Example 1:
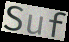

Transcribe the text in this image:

Suf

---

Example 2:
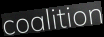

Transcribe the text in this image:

coalition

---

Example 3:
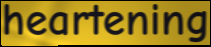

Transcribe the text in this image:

heartening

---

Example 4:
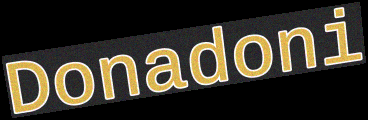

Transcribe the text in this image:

Donadoni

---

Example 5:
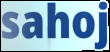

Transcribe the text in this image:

sahoj